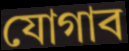
যোগাব